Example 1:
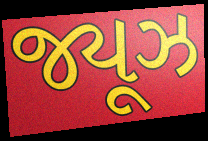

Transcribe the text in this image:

જ્યૂઝ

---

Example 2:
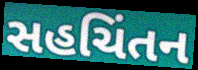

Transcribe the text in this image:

સહચિંતન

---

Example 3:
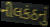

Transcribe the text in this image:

નીલકંઠનું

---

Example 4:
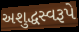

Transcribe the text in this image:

અશુદ્ધસ્વરૂપે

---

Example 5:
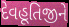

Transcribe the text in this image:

દેવહૂતિજીને